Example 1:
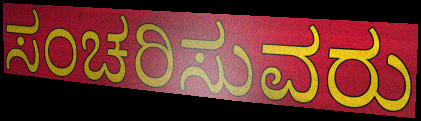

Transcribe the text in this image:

ಸಂಚರಿಸುವರು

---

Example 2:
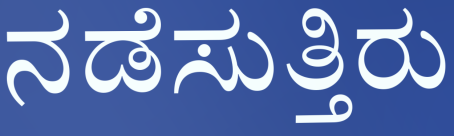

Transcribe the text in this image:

ನಡೆಸುತ್ತಿರು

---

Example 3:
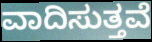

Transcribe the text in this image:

ವಾದಿಸುತ್ತವೆ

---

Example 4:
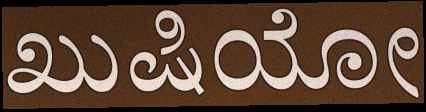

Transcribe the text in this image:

ಖುಷಿಯೋ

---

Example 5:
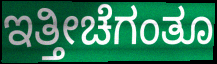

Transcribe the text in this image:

ಇತ್ತೀಚೆಗಂತೂ